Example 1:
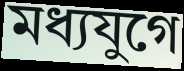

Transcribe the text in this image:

মধ্যযুগে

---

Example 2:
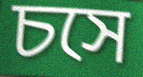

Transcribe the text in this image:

চসে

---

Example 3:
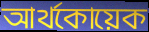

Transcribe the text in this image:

আর্থকোয়েক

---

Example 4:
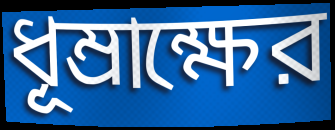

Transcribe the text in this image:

ধূম্রাক্ষের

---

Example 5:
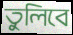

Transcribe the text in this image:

তুলিবে